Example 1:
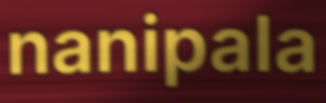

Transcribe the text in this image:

nanipala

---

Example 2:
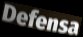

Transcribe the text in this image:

Defensa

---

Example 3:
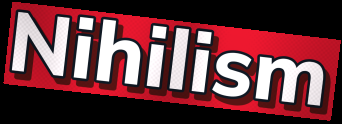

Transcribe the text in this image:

Nihilism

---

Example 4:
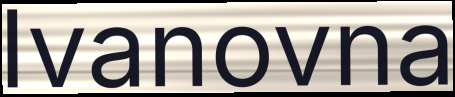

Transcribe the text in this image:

Ivanovna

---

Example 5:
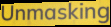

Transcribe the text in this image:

Unmasking